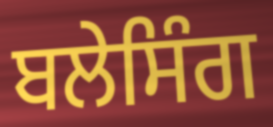
ਬਲੇਸਿੰਗ